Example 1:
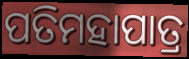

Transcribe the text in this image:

ପତିମହାପାତ୍ର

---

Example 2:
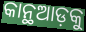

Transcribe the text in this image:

କାନ୍ଥଆଡ଼କୁ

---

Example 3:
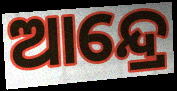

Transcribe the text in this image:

ଆନ୍ଦ୍ରେ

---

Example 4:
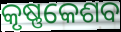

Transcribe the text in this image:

କୃଷ୍ଣକେଶବ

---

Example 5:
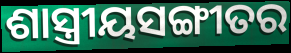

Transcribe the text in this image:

ଶାସ୍ତ୍ରୀୟସଙ୍ଗୀତର